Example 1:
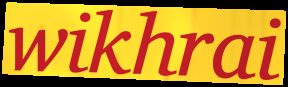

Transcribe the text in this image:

wikhrai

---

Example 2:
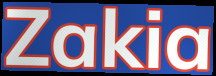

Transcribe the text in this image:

Zakia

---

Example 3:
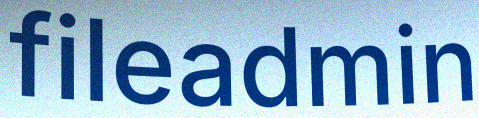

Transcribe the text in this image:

fileadmin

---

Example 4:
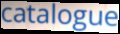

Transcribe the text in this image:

catalogue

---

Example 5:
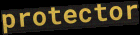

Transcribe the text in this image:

protector